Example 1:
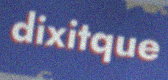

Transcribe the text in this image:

dixitque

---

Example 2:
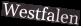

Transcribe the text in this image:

Westfalen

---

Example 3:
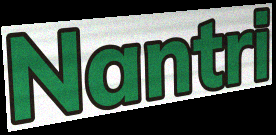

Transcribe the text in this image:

Nantri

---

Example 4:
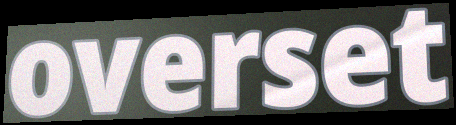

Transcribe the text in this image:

overset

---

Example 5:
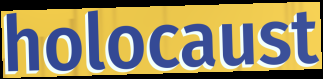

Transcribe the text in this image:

holocaust